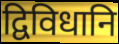
द्विविधानि